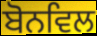
ਬੋਨਵਿਲ